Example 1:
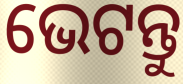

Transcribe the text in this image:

ଭେଟନ୍ତୁ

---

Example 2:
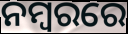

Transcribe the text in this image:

ନମ୍ବରରେ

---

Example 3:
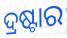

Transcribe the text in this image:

ଦ୍ରଷ୍ଟାର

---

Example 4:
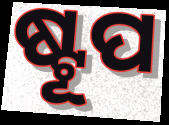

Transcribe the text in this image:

ଷ୍ଟୂପ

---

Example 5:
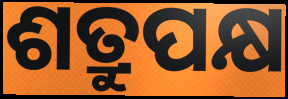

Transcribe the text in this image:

ଶତ୍ରୁପକ୍ଷ